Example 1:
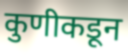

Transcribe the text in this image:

कुणीकडून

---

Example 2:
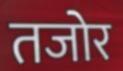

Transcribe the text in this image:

तजोर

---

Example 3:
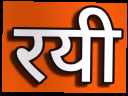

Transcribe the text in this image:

रयी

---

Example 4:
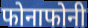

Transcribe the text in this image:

फोनाफोनी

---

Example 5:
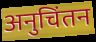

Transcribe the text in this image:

अनुचिंतन